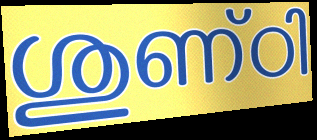
ശുണ്‌ഠി